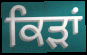
ਕਿੜਾਂ